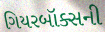
ગિયરબૉક્સની